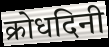
क्रोधदिनी